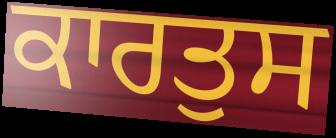
ਕਾਰਤੁਸ